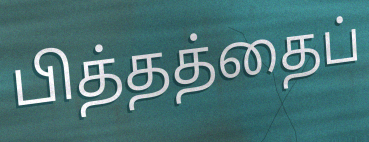
பித்தத்தைப்